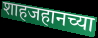
शाहजहानच्या